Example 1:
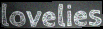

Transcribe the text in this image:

lovelies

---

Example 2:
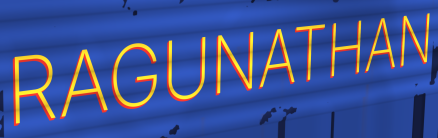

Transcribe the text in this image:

RAGUNATHAN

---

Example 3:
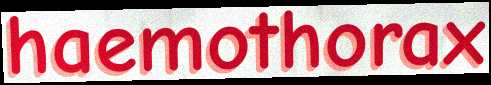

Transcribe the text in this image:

haemothorax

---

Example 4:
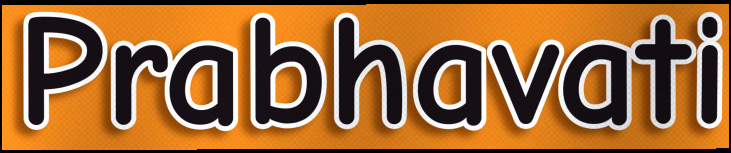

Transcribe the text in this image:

Prabhavati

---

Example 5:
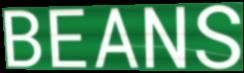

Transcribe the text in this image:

BEANS